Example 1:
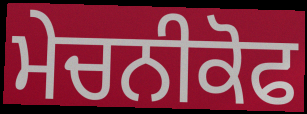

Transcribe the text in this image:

ਮੇਚਨੀਕੋਫ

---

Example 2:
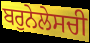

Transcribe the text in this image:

ਬਰੁਨੇਲੇਸਚੀ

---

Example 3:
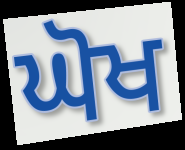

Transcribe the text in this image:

ਘੋਖ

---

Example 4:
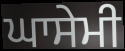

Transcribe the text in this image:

ਘਾਸੇਮੀ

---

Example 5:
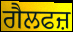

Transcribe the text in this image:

ਗੈਲਫਜ਼